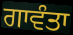
ਗਾਵੰਤਾ